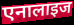
एनालाइज